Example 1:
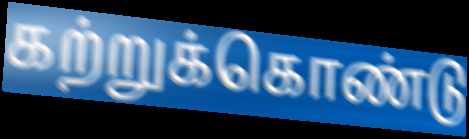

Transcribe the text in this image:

கற்றுக்கொண்டு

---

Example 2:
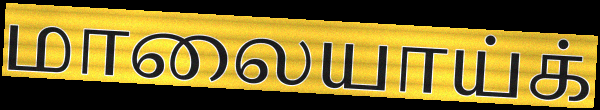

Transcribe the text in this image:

மாலையாய்க்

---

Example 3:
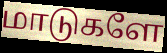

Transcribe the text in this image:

மாடுகளே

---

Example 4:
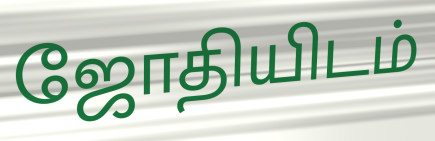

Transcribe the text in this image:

ஜோதியிடம்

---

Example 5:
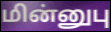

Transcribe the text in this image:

மின்னுபு